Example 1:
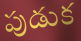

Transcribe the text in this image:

పుడుక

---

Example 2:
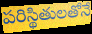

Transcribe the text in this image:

పరిస్థితులతోనే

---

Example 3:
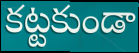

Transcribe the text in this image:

కట్టకుండా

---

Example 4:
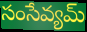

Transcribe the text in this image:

సంసేవ్యమ్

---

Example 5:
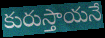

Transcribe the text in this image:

కురుస్తాయనే